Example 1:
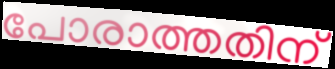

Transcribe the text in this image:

പോരാത്തതിന്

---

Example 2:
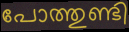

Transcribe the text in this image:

പോത്തുണ്ടി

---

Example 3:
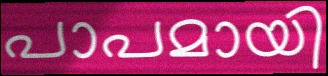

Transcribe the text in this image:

പാപമായി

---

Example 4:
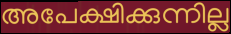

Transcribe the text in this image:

അപേക്ഷിക്കുന്നില്ല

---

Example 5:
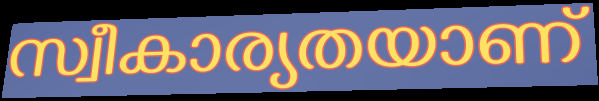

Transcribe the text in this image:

സ്വീകാര്യതയാണ്